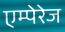
एम्पेरेज